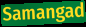
Samangad